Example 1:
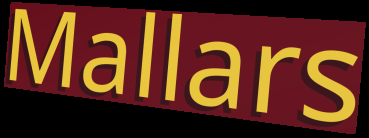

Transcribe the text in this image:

Mallars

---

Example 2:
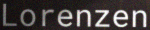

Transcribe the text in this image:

Lorenzen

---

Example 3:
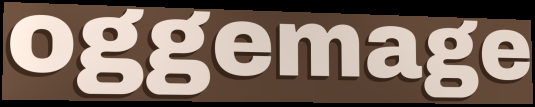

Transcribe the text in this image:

oggemage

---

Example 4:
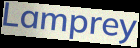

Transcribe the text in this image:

Lamprey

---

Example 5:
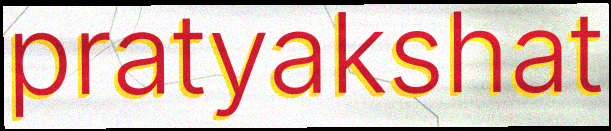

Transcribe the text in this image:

pratyakshat